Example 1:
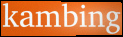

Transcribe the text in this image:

kambing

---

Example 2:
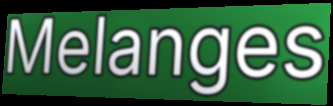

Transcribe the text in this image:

Melanges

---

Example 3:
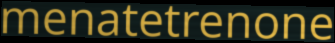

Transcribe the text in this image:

menatetrenone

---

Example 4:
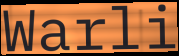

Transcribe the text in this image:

Warli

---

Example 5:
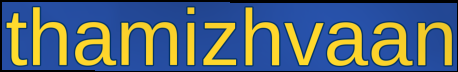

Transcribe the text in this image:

thamizhvaan